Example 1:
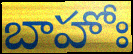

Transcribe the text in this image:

బాహోః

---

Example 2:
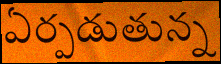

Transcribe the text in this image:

ఏర్పడుతున్న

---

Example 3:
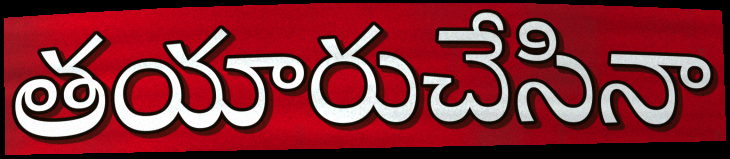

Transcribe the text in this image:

తయారుచేసినా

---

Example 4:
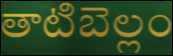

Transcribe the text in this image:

తాటిబెల్లం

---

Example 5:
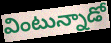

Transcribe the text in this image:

వింటున్నాడో